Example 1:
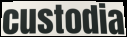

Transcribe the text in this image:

custodia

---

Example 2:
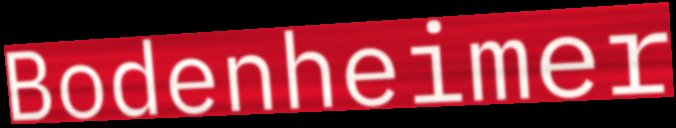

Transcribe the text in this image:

Bodenheimer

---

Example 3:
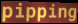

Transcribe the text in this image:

pipping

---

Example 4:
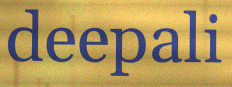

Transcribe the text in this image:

deepali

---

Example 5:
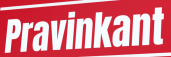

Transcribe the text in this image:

Pravinkant